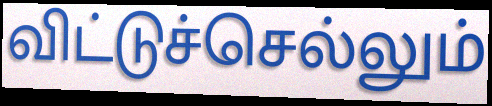
விட்டுச்செல்லும்